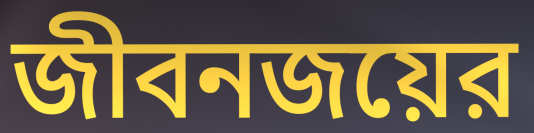
জীবনজয়ের